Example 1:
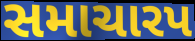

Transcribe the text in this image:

સમાચારપ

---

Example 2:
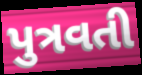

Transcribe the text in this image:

પુત્રવતી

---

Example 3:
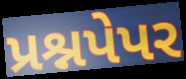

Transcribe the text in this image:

પ્રશ્નપેપર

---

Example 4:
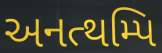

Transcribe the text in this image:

અનત્થમ્પિ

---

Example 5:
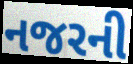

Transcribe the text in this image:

નજરની